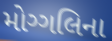
મોગ્ગલિના